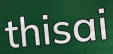
thisai